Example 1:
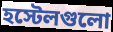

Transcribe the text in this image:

হস্টেলগুলো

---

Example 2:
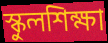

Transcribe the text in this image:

স্কুলশিক্ষা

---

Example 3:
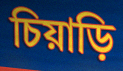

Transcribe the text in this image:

চিয়াড়ি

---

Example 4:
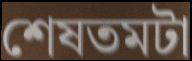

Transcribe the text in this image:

শেষতমটা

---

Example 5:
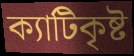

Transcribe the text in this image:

ক্যাটিকৃষ্ট